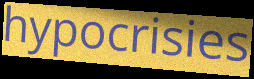
hypocrisies